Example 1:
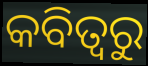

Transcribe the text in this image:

କବିତ୍ଵରୁ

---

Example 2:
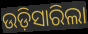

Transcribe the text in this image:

ଉଡ଼ିସାରିଲା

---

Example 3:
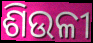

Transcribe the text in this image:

ଶିଉଳୀ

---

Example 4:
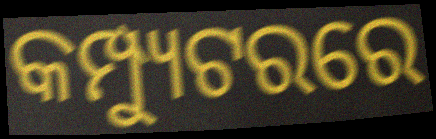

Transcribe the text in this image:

କମ୍ପ୍ୟୁଟରରେ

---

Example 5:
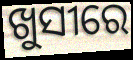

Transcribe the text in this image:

ଖୁସୀରେ